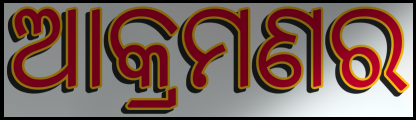
ଆକ୍ରମଣର